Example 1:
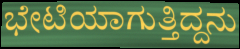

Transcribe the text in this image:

ಭೇಟಿಯಾಗುತ್ತಿದ್ದನು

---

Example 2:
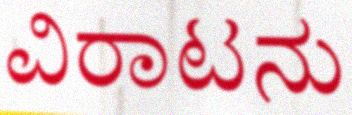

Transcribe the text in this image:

ವಿರಾಟನು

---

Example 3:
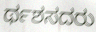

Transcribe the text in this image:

ರ್ಥಶಸದರು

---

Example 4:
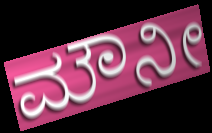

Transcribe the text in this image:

ಮೌನೀ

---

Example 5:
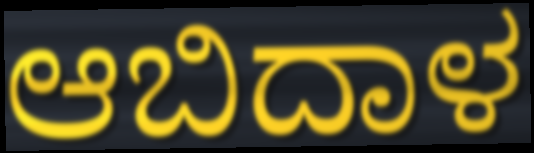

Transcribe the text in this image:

ಆಬಿದಾಳ